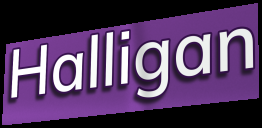
Halligan